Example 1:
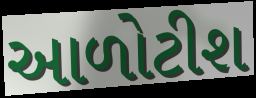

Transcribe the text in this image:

આળોટીશ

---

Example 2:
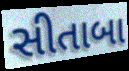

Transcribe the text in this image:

સીતાબા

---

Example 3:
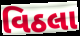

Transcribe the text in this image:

વિઠલા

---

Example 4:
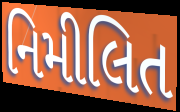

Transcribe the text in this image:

નિમીલિત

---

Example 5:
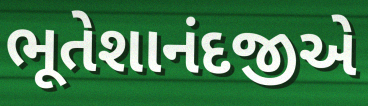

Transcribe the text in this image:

ભૂતેશાનંદજીએ